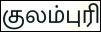
குலம்புரி